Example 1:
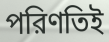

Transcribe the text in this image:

পরিণতিই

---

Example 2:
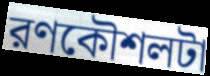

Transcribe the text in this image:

রণকৌশলটা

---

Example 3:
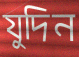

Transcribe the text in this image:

যুদিন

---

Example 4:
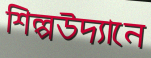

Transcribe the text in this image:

শিল্পউদ্যানে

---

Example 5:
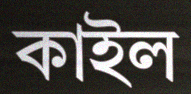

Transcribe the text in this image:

কাইল